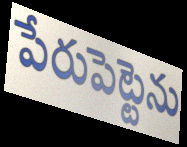
పేరుపెట్టెను